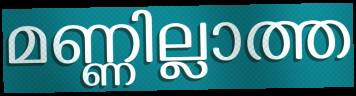
മണ്ണില്ലാത്ത